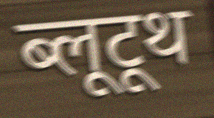
ब्लूटूथ